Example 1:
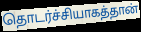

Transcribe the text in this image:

தொடர்ச்சியாகத்தான்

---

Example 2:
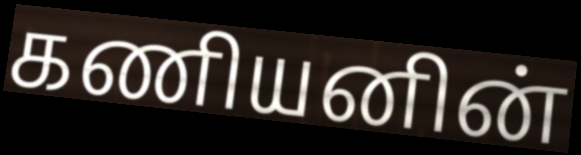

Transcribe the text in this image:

கணியனின்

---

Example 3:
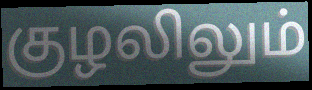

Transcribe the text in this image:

குழலிலும்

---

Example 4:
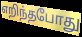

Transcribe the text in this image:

எறிந்தபோது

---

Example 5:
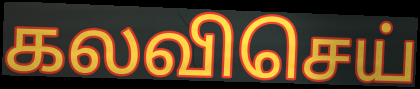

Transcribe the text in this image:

கலவிசெய்